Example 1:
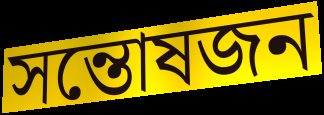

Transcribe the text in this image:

সন্তোষজন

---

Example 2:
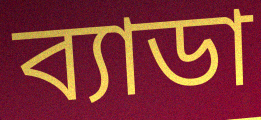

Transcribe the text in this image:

ব্যাডা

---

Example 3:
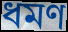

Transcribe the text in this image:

ধমণ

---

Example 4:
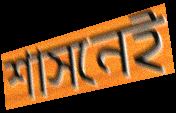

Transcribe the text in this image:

শাসনেই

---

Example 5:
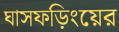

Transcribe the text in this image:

ঘাসফড়িংয়ের